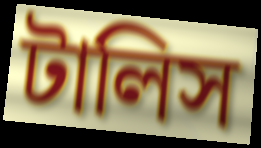
টালিস